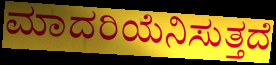
ಮಾದರಿಯೆನಿಸುತ್ತದೆ